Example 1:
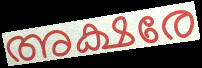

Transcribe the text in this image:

അക്ഷരേ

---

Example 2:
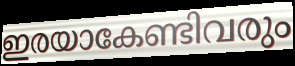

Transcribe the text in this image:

ഇരയാകേണ്ടിവരും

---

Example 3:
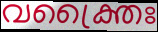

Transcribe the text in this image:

വക്ത്രൈഃ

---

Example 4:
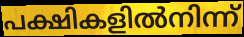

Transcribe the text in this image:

പക്ഷികളിൽനിന്ന്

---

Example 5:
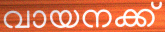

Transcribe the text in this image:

വായനക്ക്